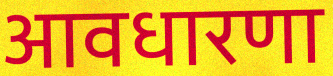
आवधारणा